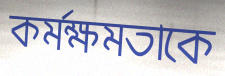
কর্মক্ষমতাকে